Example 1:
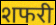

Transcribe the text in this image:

शफरी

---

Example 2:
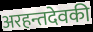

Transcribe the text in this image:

अरहन्तदेवकी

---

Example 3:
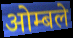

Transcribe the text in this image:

ओम्बले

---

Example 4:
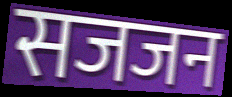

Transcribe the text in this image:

सजजन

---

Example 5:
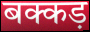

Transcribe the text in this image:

बक्कड़